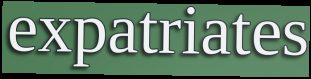
expatriates